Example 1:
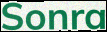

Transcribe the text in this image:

Sonra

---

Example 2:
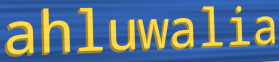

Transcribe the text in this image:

ahluwalia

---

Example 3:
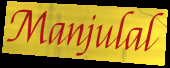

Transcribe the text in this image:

Manjulal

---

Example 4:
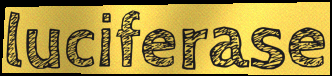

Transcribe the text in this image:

luciferase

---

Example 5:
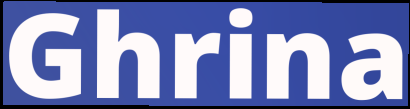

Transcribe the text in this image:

Ghrina